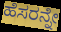
ಹೆಸರನ್ನೇ